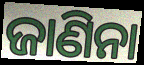
ଜାଣିନା